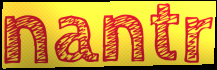
nantr